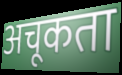
अचूकता